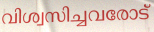
വിശ്വസിച്ചവരോട്